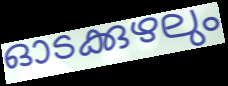
ഓടക്കുഴലും